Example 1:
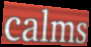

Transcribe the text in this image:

calms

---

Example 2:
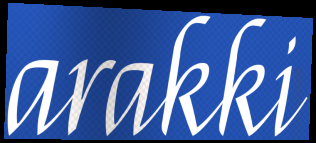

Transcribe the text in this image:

arakki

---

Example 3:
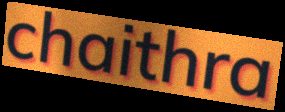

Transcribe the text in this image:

chaithra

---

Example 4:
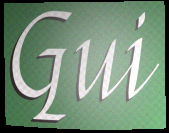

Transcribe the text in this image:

Gui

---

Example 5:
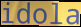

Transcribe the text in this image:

idola